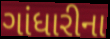
ગાંધારીના